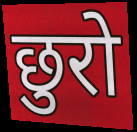
छुरो